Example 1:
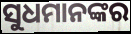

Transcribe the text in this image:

ସୁଧମାନଙ୍କର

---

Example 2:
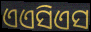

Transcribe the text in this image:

ଏଏସିଏସ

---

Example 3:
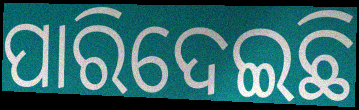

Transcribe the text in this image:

ପାରିଦେଇଛି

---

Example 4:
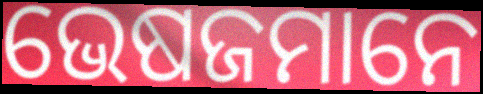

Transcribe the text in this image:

ଭେଷଜମାନେ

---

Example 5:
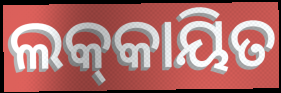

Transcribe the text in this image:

ଲକ୍‌କାୟିତ